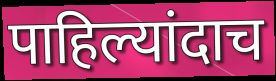
पाहिल्यांदाच